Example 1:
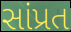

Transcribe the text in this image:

સાંપ્રત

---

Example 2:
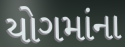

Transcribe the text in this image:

યોગમાંના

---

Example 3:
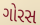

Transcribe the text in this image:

ગોરસ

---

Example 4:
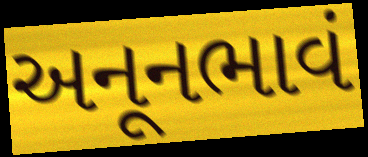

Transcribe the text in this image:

અનૂનભાવં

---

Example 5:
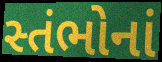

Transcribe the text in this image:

સ્તંભોનાં